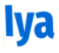
Iya